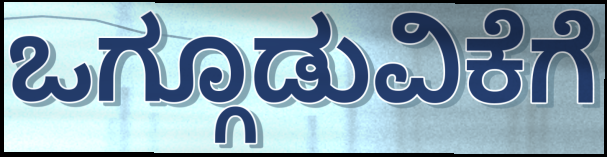
ಒಗ್ಗೂಡುವಿಕೆಗೆ